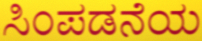
ಸಿಂಪಡನೆಯ